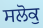
ਸਲੋਕੁ